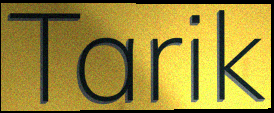
Tarik